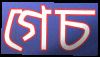
গেচ